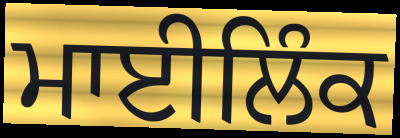
ਮਾਈਲਿੰਕ